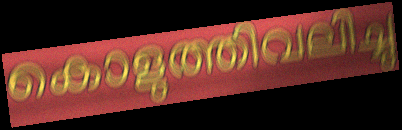
കൊളുത്തിവലിച്ചു